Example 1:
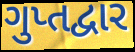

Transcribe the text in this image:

ગુપ્તદ્વાર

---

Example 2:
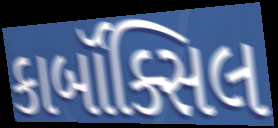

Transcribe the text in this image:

કાર્બૉક્સિલ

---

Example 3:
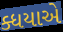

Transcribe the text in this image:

ક્ધયાએ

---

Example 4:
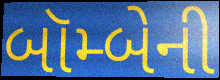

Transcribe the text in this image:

બૉમ્બેની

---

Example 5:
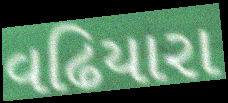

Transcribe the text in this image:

વઢિયારા